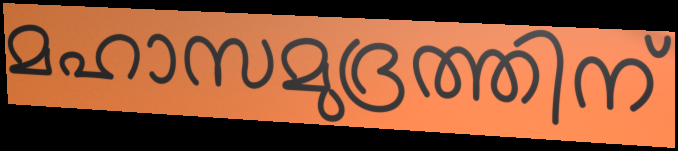
മഹാസമുദ്രത്തിന്